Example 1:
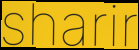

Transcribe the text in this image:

sharir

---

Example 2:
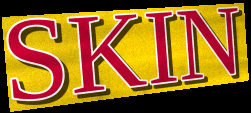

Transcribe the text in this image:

SKIN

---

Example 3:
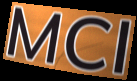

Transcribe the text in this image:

MCI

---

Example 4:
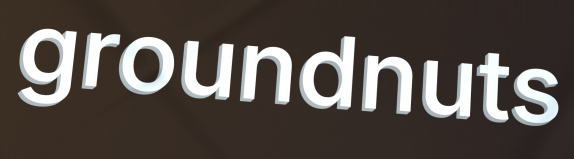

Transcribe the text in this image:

groundnuts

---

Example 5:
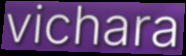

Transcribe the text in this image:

vichara